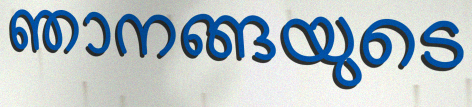
ഞാനങ്ങയുടെ